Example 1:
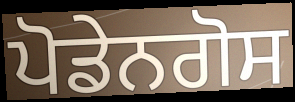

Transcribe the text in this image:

ਪੋਡੇਨਗੋਸ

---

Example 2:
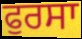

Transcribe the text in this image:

ਫੁਰਸਾ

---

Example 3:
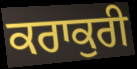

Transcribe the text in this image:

ਕਰਾਕੁਰੀ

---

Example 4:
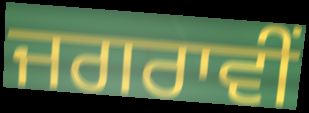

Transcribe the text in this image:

ਜਗਰਾਵੀਂ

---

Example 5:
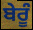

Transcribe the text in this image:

ਬੇਰੂੰ